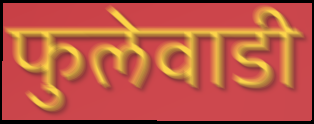
फुलेवाडी